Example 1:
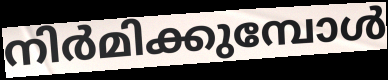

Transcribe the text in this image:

നിർമിക്കുമ്പോൾ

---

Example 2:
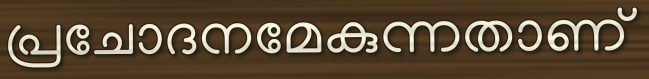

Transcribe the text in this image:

പ്രചോദനമേകുന്നതാണ്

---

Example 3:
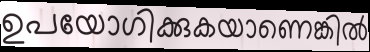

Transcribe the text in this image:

ഉപയോഗിക്കുകയാണെങ്കിൽ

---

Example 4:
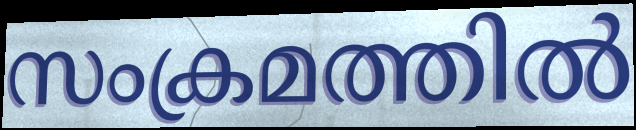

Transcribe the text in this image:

സംക്രമത്തിൽ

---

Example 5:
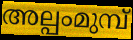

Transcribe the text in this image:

അല്പംമുമ്പ്